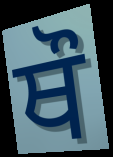
ਥੌ